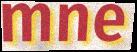
mne